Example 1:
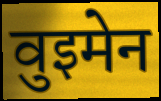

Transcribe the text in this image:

वुइमेन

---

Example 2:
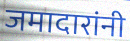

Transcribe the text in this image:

जमादारांनी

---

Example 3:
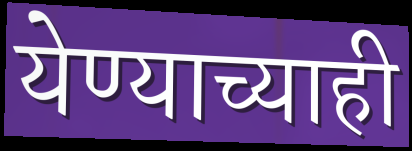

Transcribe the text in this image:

येण्याच्याही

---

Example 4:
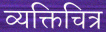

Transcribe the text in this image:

व्यक्तिचित्र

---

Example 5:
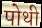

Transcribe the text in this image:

पोथी